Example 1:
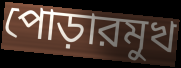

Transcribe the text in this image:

পোড়ারমুখ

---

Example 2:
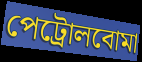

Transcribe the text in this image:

পেট্রোলবোমা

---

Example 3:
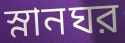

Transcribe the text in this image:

স্নানঘর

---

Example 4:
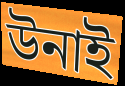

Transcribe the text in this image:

উনাই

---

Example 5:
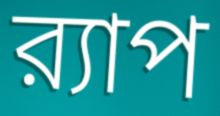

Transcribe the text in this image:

র‍্যাপ